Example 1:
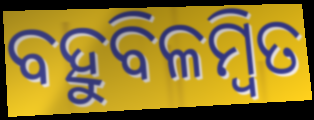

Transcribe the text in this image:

ବହୁବିଳମ୍ବିତ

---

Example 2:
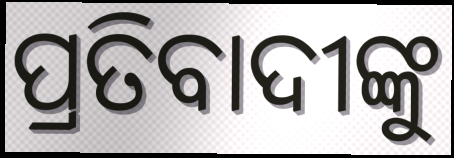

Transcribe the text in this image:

ପ୍ରତିବାଦୀଙ୍କୁ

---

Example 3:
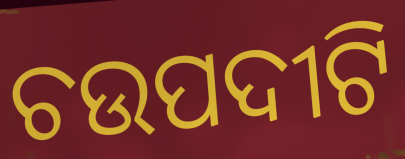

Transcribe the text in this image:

ଚଉପଦୀଟି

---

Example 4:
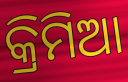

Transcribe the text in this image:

କ୍ରିମିଆ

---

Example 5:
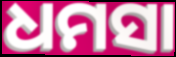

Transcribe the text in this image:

ଧମସା